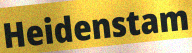
Heidenstam